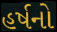
હર્ષનો